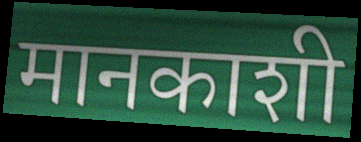
मानकाशी